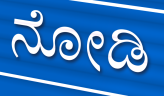
ನೋಡಿ